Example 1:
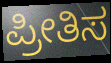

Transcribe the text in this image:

ಪ್ರೀತಿಸ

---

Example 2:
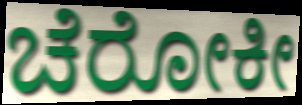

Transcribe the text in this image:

ಚೆರೋಕೀ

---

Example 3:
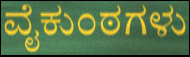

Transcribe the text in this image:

ವೈಕುಂಠಗಳು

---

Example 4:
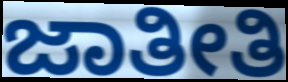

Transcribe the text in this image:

ಜಾತೀತಿ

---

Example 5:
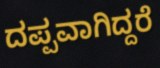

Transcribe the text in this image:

ದಪ್ಪವಾಗಿದ್ದರೆ